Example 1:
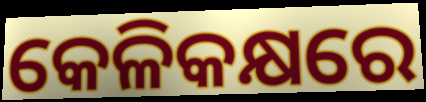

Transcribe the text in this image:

କେଳିକକ୍ଷରେ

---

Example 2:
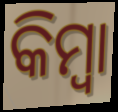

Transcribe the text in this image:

କିମ୍ଵା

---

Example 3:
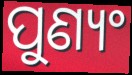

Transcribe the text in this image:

ପୁଣ୍ୟଂ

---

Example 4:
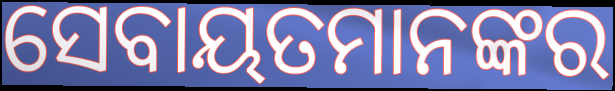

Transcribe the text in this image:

ସେବାୟତମାନଙ୍କର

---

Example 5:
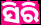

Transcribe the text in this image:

ସିରି